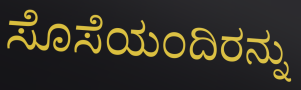
ಸೊಸೆಯಂದಿರನ್ನು